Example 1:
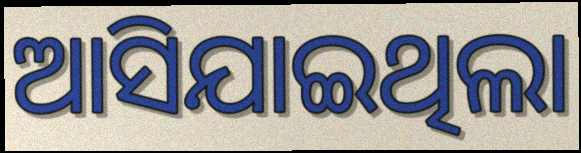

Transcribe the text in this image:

ଆସିଯାଇଥିଲା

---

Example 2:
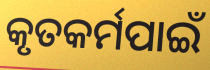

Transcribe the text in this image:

କୃତକର୍ମପାଇଁ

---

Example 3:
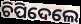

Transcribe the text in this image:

ଚିପିଦେଲେ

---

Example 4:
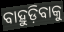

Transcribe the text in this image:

ବାହୁଡ଼ିବାକୁ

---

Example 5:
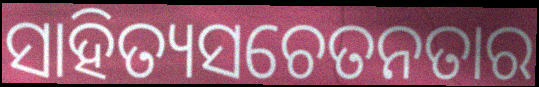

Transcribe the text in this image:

ସାହିତ୍ୟସଚେତନତାର